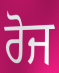
ਰੋਜ